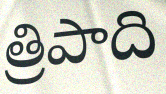
త్రిపాది